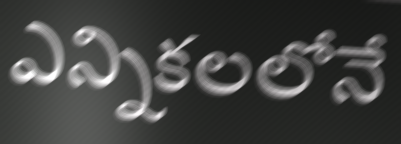
ఎన్నికలలోనే